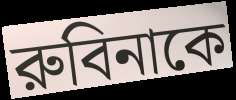
রুবিনাকে